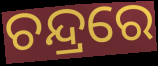
ଚନ୍ଦ୍ରରେ